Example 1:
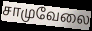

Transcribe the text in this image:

சாமுவேலை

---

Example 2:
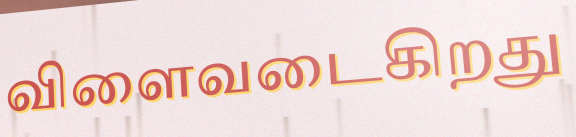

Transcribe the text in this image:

விளைவடைகிறது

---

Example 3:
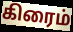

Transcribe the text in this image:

கிரைம்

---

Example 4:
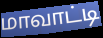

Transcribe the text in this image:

மாவாட்டி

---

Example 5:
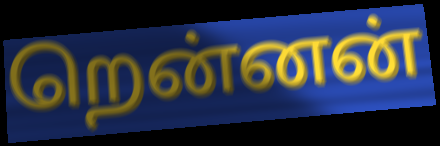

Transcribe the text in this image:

றென்னன்